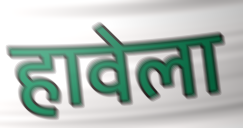
हावेला